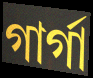
গার্গা